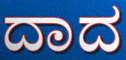
ದಾದ